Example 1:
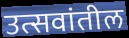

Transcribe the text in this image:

उत्सवांतील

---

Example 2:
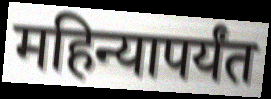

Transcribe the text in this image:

महिन्यापर्यंत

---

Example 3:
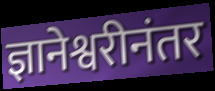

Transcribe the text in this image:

ज्ञानेश्वरीनंतर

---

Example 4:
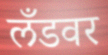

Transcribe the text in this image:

लँडवर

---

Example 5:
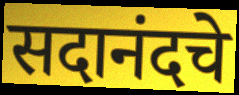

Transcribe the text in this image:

सदानंदचे